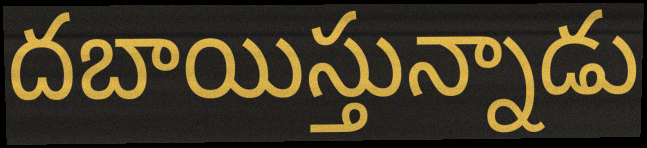
దబాయిస్తున్నాడు